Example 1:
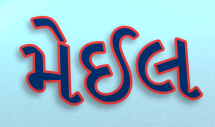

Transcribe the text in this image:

મેઈલ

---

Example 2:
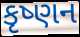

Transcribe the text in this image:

કૃષ્ણન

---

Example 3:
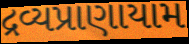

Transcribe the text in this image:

દ્રવ્યપ્રાણાયામ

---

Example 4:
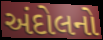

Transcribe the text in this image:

અંદોલનો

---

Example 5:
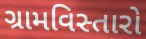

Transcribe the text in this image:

ગ્રામવિસ્તારો